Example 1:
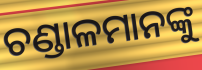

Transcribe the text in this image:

ଚଣ୍ଡାଳମାନଙ୍କୁ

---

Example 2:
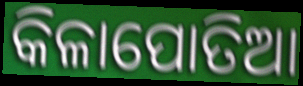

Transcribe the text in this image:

କିଳାପୋତିଆ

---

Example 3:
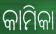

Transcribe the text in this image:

କାମିକା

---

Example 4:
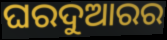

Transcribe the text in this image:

ଘରଦୁଆରର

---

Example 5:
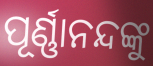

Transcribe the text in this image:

ପୂର୍ଣ୍ଣାନନ୍ଦଙ୍କୁ